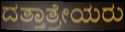
ದತ್ತಾತ್ರೇಯರು